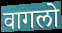
वागलो